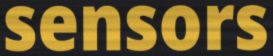
sensors